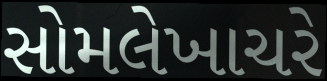
સોમલેખાચરે